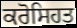
ਕਰੋਸਿਹਤ